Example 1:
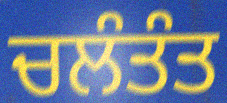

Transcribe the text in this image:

ਚਲੰਤੰਤ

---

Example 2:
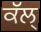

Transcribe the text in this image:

ਕੱਲ੍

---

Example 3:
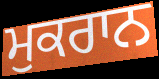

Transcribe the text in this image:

ਮੁਕਰਾਨ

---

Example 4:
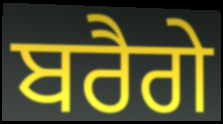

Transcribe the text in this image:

ਬਰੈਗੇ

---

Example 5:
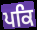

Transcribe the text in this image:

ਪਕਿ